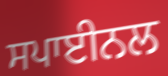
ਸਪਾਈਨਲ